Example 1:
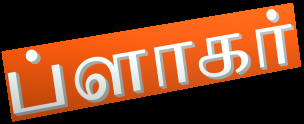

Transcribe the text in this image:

ப்ளாகர்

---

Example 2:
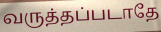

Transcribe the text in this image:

வருத்தப்படாதே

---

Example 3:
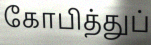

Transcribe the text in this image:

கோபித்துப்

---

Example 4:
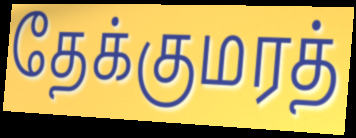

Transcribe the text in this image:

தேக்குமரத்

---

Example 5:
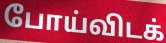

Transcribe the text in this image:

போய்விடக்